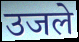
उजले